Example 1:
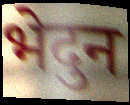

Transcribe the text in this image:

भेदुन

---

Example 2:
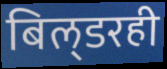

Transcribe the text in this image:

बिल्डरही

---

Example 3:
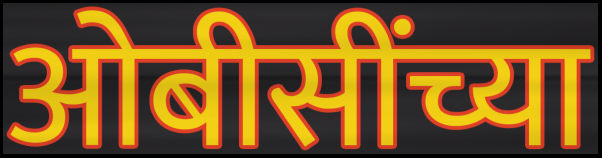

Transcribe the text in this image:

ओबीसींच्या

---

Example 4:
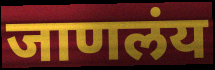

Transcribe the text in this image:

जाणलंय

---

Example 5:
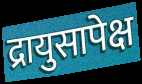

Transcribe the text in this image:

द्रायुसापेक्ष